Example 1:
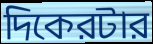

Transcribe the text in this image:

দিকেরটার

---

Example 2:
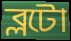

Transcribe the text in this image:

ব্লটো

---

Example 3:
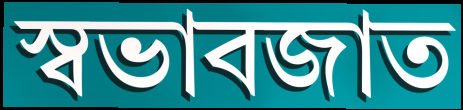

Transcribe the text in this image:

স্বভাবজাত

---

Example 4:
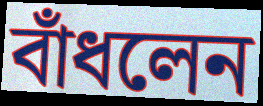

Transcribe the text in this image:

বাঁধলেন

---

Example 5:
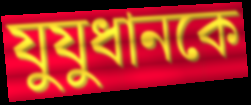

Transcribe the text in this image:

যুযুধানকে